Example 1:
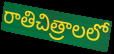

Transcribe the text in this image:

రాతిచిత్రాలలో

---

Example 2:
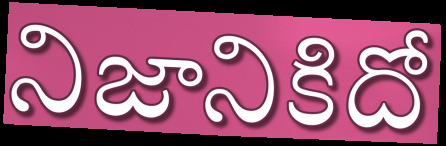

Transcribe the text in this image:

నిజానికిదో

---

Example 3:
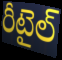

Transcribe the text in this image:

రీటైల్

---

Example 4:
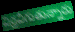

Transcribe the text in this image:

విర్రవీగుతున్నారు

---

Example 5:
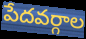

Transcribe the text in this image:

పేదవర్గాల